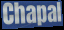
Chapal